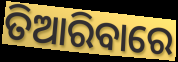
ତିଆରିବାରେ